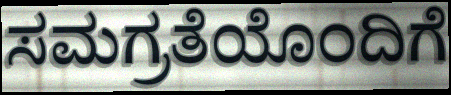
ಸಮಗ್ರತೆಯೊಂದಿಗೆ